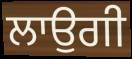
ਲਾਉਗੀ